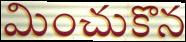
మించుకొన